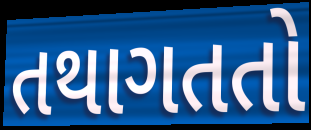
તથાગતતો